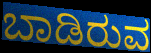
ಬಾಡಿರುವ